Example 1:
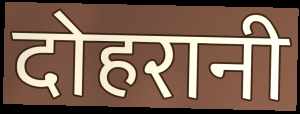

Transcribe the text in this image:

दोहरानी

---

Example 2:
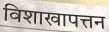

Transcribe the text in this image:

विशाखापत्तन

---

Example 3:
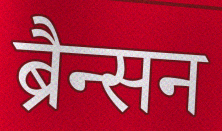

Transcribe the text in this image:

ब्रैन्सन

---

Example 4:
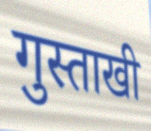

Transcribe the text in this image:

गुस्ताखी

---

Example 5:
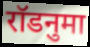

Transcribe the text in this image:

रॉडनुमा